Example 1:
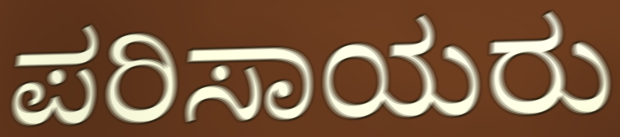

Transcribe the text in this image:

ಪರಿಸಾಯರು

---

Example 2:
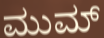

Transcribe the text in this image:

ಮುಮ್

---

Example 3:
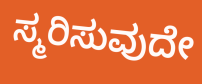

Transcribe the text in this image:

ಸ್ಮರಿಸುವುದೇ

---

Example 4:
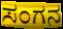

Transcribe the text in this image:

ಸಂಗನ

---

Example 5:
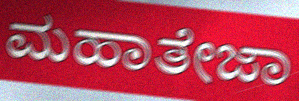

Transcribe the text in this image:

ಮಹಾತೇಜಾ